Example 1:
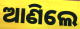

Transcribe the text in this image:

ଆଣିଲେ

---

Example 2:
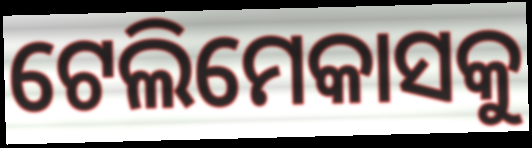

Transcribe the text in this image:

ଟେଲିମେକାସକୁ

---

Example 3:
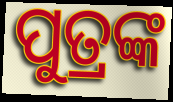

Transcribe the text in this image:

ପୁତ୍ରଙ୍କ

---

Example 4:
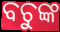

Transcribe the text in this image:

ବଚୁଙ୍କ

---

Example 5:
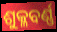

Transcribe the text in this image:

ଶୁକ୍ଳବର୍ଣ୍ଣ